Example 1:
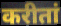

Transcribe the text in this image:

करीतां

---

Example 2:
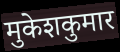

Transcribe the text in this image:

मुकेशकुमार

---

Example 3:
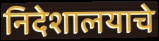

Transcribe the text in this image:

निदेशालयाचे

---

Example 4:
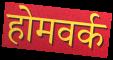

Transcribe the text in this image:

होमवर्क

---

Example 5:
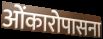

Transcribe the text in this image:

ओंकारोपासना